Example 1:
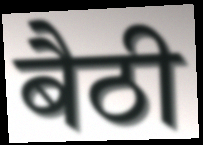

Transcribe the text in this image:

बैठी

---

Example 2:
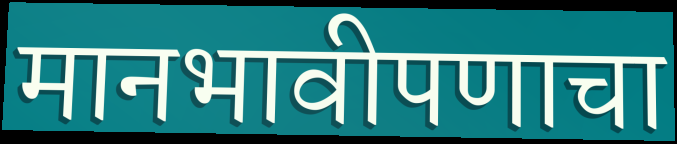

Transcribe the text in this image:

मानभावीपणाचा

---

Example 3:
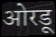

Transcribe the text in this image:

ओरडू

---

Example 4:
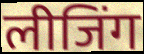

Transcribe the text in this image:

लीजिंग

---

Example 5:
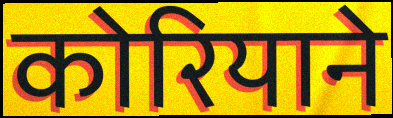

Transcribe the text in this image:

कोरियाने